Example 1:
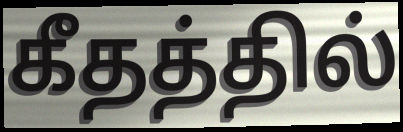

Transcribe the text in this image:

கீதத்தில்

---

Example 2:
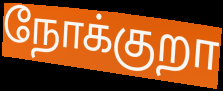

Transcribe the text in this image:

நோக்குறா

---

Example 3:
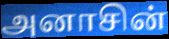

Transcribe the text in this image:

அனாசின்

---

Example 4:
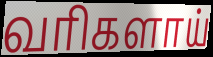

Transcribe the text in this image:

வரிகளாய்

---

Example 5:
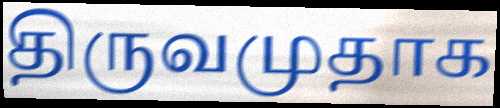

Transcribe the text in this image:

திருவமுதாக